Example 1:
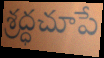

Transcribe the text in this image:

శ్రద్ధచూపే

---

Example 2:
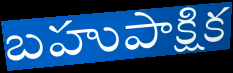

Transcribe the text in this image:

బహుపాక్షిక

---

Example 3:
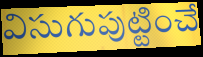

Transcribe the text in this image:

విసుగుపుట్టించే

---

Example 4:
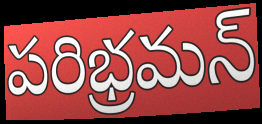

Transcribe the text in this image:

పరిభ్రమన్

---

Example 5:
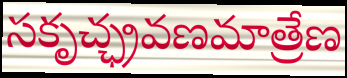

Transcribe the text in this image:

సకృచ్ఛ్రవణమాత్రేణ